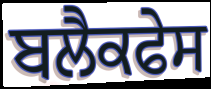
ਬਲੈਕਫੇਸ